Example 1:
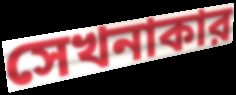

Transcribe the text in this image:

সেখনাকার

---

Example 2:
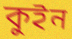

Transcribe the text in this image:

কুইন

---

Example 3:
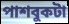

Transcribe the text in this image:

পাশবুকটা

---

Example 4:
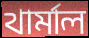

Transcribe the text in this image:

থার্মাল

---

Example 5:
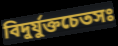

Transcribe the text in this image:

বিদুর্যুক্তচেতসঃ